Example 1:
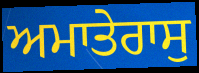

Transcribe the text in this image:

ਅਮਾਤੇਰਾਸੁ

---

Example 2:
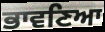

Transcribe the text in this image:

ਭਾਵਣਿਆ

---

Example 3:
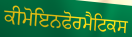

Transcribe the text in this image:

ਕੀਮੋਇਨਫੋਰਮੈਟਿਕਸ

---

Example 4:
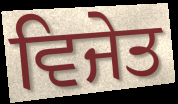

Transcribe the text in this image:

ਵਿਜੇਤ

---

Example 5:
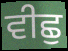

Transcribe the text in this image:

ਵੀਛੁ